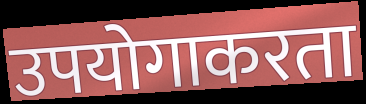
उपयोगाकरता